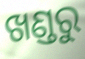
ଖଣ୍ଡରୁ